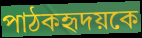
পাঠকহৃদয়কে